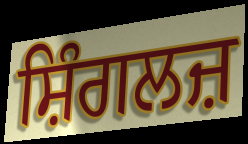
ਸ਼ਿੰਗਲਜ਼